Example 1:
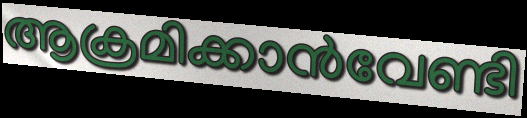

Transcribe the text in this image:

ആക്രമിക്കാൻവേണ്ടി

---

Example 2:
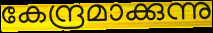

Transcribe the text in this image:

കേന്ദ്രമാക്കുന്നു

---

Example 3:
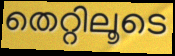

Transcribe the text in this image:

തെറ്റിലൂടെ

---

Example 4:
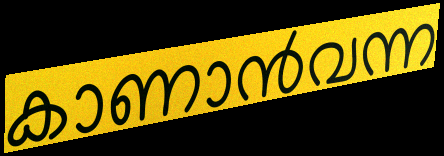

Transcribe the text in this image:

കാണാൻവന്ന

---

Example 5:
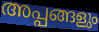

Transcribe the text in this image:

അപ്പങ്ങളും